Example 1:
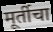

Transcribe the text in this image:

मूर्तीचा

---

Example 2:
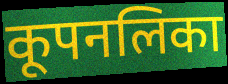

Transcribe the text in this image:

कूपनलिका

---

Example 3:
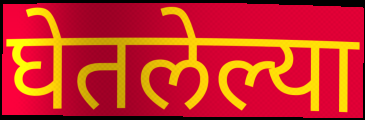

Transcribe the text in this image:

घेतलेल्या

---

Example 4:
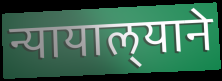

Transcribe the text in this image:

न्यायाल्याने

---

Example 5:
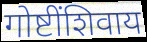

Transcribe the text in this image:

गोष्टींशिवाय